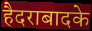
हैदराबादके